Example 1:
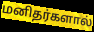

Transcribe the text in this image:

மனிதர்களால்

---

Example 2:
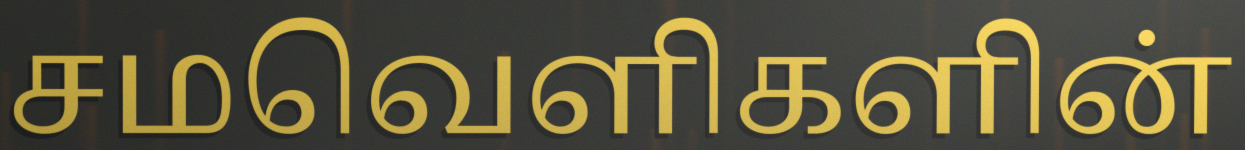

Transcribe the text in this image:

சமவெளிகளின்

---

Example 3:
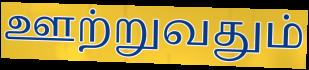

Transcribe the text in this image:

ஊற்றுவதும்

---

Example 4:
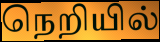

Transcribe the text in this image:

நெறியில்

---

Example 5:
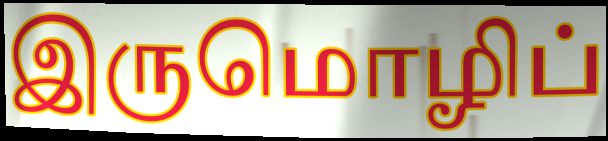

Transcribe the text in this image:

இருமொழிப்